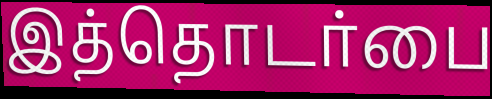
இத்தொடர்பை